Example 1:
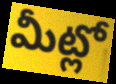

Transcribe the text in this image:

మీట్లో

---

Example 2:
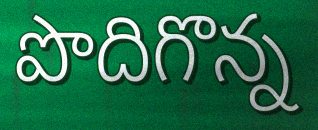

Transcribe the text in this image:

పొదిగొన్న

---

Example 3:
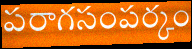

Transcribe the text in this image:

పరాగసంపర్కం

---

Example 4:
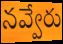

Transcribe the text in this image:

నవ్వేరు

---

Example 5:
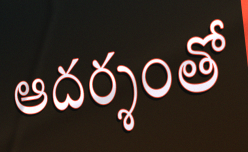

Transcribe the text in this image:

ఆదర్శంతో